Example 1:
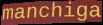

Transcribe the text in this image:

manchiga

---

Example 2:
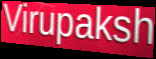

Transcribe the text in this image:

Virupaksh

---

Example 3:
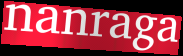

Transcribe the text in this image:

nanraga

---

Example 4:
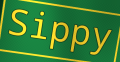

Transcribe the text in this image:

Sippy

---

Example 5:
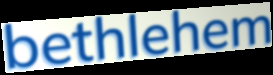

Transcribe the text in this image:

bethlehem